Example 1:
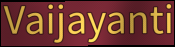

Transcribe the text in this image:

Vaijayanti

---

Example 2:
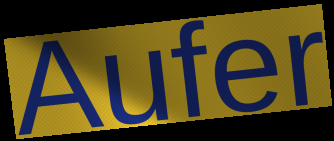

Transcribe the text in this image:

Aufer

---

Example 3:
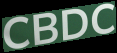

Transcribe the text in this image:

CBDC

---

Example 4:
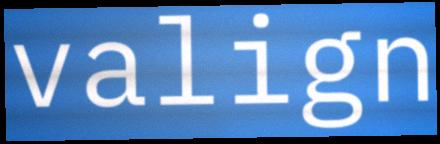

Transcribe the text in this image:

valign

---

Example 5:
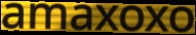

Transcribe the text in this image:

amaxoxo